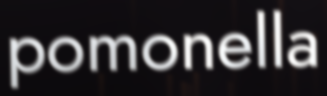
pomonella